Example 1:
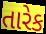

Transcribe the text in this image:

તારેક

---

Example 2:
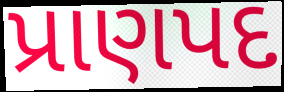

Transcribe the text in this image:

પ્રાણપદ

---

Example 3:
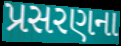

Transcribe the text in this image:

પ્રસરણના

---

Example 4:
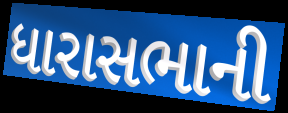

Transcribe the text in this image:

ધારાસભાની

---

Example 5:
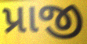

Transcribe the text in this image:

પ્રાજી